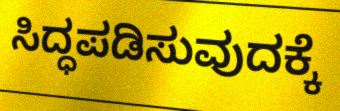
ಸಿದ್ಧಪಡಿಸುವುದಕ್ಕೆ